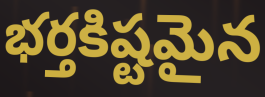
భర్తకిష్టమైన